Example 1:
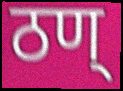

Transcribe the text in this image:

ठण्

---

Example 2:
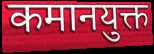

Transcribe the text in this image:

कमानयुक्त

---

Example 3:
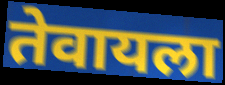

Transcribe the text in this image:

तेवायला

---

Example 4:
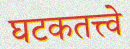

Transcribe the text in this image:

घटकतत्त्वे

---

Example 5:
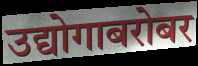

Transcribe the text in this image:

उद्योगाबरोबर